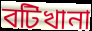
বটিখানা